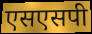
एसएसपी